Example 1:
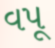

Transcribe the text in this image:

વપૂ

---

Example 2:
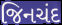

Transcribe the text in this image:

જિનચંદ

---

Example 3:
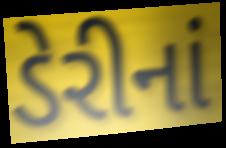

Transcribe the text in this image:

ડેરીનાં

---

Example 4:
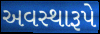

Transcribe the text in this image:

અવસ્થારૂપે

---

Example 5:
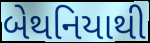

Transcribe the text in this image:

બેથનિયાથી